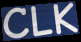
CLK